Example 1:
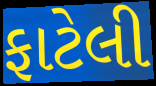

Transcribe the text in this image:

ફાટેલી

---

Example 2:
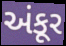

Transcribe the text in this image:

અંકૂર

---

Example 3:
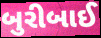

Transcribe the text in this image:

બુરીબાઈ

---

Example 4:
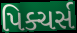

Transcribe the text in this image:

પિક્ચર્સ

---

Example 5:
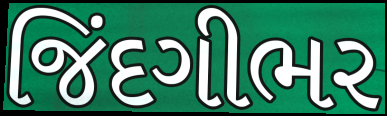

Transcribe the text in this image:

જિંદગીભર